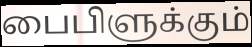
பைபிளுக்கும்